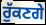
ਰੁੱਕਣਗੇ